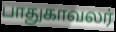
பாதுகாவலர்